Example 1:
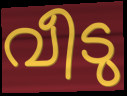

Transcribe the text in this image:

വീടു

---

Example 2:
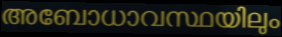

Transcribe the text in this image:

അബോധാവസ്ഥയിലും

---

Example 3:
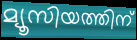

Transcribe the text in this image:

മ്യൂസിയത്തിന്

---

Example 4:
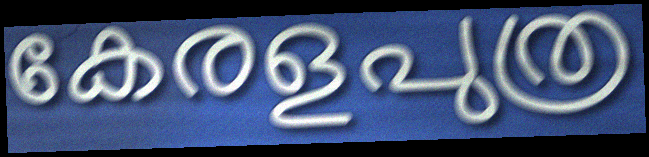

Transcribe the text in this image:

കേരളപുത്ര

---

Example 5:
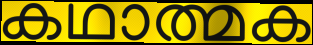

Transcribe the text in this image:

കഥാത്മക